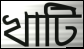
খাটি